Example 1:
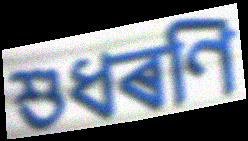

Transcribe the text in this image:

শুধৰণি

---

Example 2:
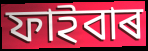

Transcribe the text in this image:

ফাইবাৰ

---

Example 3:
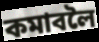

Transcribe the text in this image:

কমাবলৈ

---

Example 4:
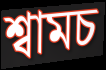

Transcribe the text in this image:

শ্বামচ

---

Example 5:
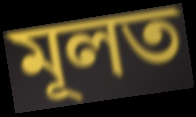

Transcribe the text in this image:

মূলত